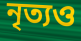
নৃত্যও